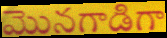
మొనగాడిగా